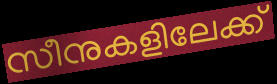
സീനുകളിലേക്ക്